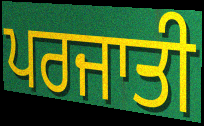
ਪਰਜਾਤੀ